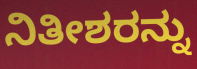
ನಿತೀಶರನ್ನು